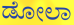
ಡೋಲಾ